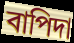
বাপিদা